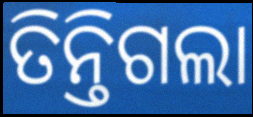
ତିନ୍ତିଗଲା